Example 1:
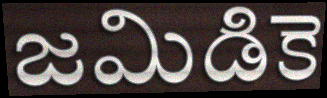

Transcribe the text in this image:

జమిడికె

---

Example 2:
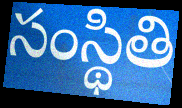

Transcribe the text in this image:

సంస్థితి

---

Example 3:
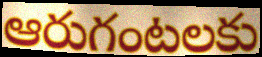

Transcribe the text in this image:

ఆరుగంటలకు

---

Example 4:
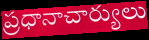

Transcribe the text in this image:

ప్రధానాచార్యులు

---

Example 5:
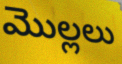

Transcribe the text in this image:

మొల్లలు